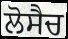
ਲੋਸੈਚ